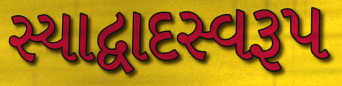
સ્યાદ્વાદસ્વરૂપ